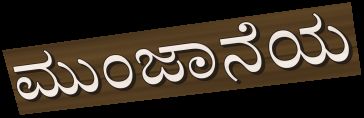
ಮುಂಜಾನೆಯ